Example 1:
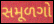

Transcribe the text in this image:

સમૂળગો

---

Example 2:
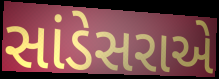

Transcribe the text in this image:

સાંડેસરાએ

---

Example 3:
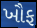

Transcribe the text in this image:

ખૌફ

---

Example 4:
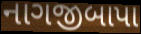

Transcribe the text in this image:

નાગજીબાપા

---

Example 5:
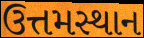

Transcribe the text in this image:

ઉત્તમસ્થાન